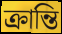
ক্ৰান্তি